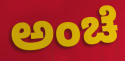
ಅಂಚೆ